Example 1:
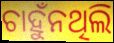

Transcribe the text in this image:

ଚାହୁଁନଥିଲି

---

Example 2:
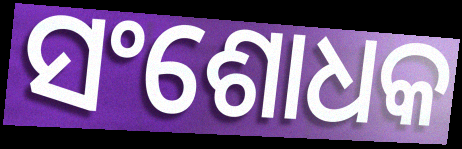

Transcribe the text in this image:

ସଂଶୋଧକ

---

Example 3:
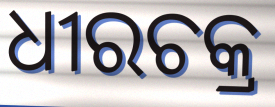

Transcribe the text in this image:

ଧୀରଚକ୍ର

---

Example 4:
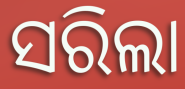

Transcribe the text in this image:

ସରିଲା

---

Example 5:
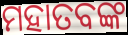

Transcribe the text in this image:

ମହାତବଙ୍କ